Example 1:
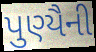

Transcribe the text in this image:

પુણ્યૈની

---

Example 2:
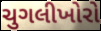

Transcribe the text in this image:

ચુગલીખોરો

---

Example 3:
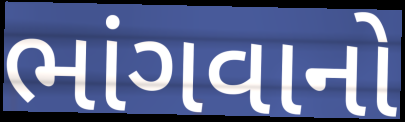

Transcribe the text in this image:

ભાંગવાનો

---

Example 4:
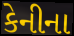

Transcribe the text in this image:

કેનીના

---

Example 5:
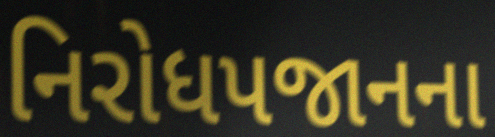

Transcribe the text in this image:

નિરોધપજાનના